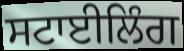
ਸਟਾਈਲਿੰਗ